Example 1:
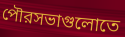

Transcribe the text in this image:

পৌরসভাগুলোতে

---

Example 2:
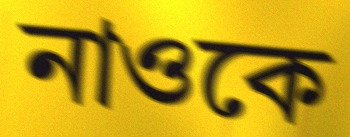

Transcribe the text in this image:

নাওকে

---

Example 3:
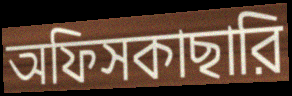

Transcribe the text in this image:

অফিসকাছারি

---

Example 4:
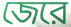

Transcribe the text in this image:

জেরে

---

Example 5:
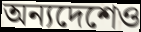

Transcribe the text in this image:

অন্যদেশেও